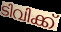
ടിവിക്ക്